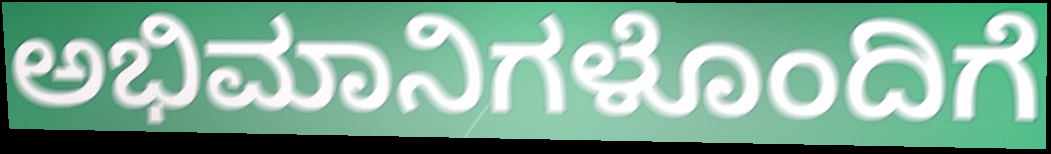
ಅಭಿಮಾನಿಗಳೊಂದಿಗೆ